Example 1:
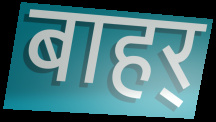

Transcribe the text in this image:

बाहर्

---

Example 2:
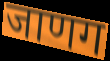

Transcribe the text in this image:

जाणग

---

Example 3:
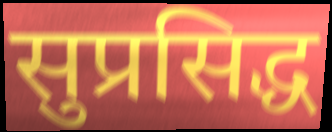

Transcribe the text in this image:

सुप्रसिद्ध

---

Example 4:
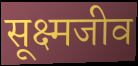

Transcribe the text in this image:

सूक्ष्मजीव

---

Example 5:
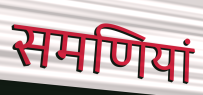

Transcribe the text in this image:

समणियां